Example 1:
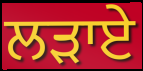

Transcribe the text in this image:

ਲੜਾਏ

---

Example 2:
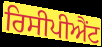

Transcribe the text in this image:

ਰਿਸੀਪੀਐਂਟ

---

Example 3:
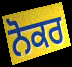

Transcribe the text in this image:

ਨੋਕਰ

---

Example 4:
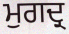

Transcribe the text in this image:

ਮੁਗਦ੍ਰ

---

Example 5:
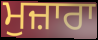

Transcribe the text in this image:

ਮੁਜ਼ਾਰਾ